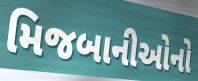
મિજબાનીઓનો